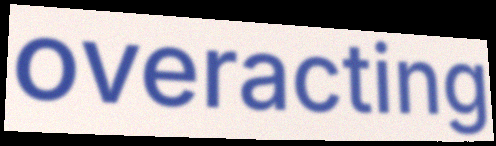
overacting